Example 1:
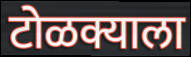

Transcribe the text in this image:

टोळक्याला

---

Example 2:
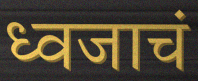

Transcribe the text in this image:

ध्वजाचं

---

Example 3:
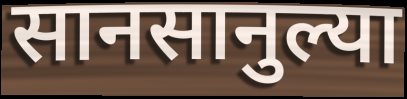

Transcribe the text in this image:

सानसानुल्या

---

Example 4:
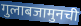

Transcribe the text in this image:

गुलाबजामुनची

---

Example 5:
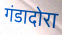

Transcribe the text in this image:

गंडादोरा